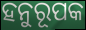
ହନୁରୂପକ